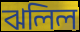
ঝলিল